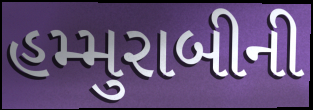
હમ્મુરાબીની